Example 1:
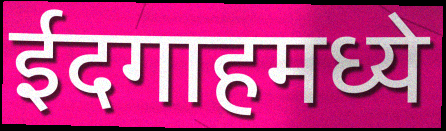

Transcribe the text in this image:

ईदगाहमध्ये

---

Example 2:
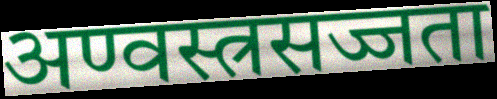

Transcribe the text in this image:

अण्वस्त्रसज्जता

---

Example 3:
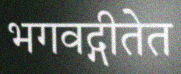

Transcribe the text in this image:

भगवद्गीतेत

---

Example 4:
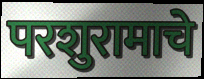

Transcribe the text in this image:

परशुरामाचे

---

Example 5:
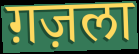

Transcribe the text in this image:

ग़ज़ला